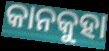
କାନକୁହା